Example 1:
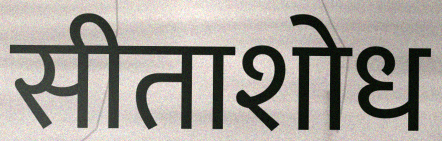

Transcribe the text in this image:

सीताशोध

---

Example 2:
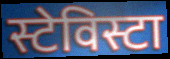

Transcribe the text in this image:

स्टेविस्टा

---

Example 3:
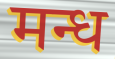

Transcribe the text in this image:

मन्ध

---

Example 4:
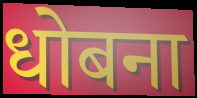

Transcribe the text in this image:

धोबना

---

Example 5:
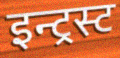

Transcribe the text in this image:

इन्ट्रस्ट